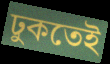
ঢুকতেই